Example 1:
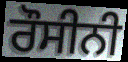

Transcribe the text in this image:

ਰੌਸੀਨੀ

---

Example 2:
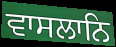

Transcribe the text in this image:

ਵਾਸਲਾਨਿ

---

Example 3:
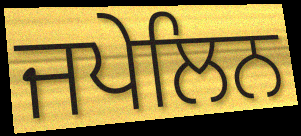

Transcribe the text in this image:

ਜਪੇਲਿਨ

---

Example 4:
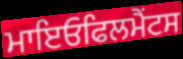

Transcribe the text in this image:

ਮਾਇਓਫਿਲਮੈਂਟਸ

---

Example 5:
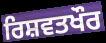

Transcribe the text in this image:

ਰਿਸ਼ਵਤਖੌਰ